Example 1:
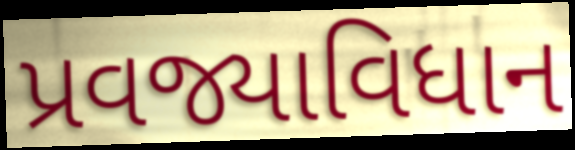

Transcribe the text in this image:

પ્રવજ્યાવિધાન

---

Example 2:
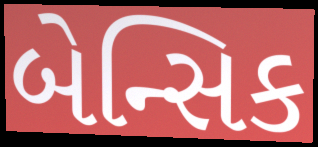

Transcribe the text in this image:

બેન્સિક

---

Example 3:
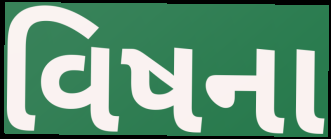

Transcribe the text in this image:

વિષના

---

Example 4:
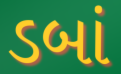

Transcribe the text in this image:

ડબાં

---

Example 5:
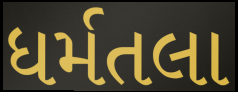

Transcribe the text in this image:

ધર્મતલા